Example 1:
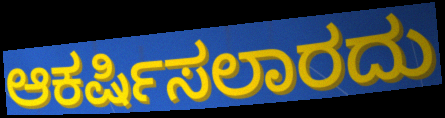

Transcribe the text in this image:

ಆಕರ್ಷಿಸಲಾರದು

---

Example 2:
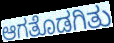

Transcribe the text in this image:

ಆಗತೊಡಗಿತು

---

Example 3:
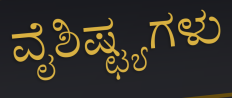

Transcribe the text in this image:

ವೈಶಿಷ್ಟ್ಯಗಳು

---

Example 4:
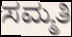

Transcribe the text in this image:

ಸಮ್ಮತಿ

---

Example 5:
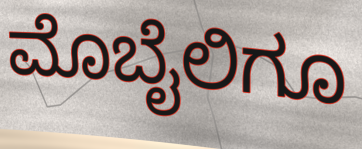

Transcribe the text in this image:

ಮೊಬೈಲಿಗೂ